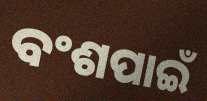
ବଂଶପାଇଁ